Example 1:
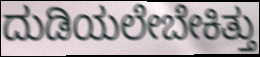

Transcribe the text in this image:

ದುಡಿಯಲೇಬೇಕಿತ್ತು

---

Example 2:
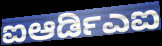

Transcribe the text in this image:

ಐಆರ್ಡಿಎಐ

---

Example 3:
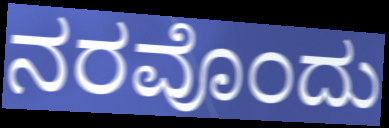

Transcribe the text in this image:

ನರವೊಂದು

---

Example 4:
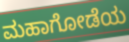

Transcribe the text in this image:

ಮಹಾಗೋಡೆಯ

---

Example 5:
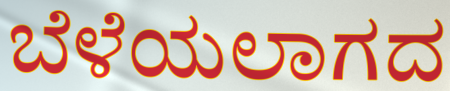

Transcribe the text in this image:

ಬೆಳೆಯಲಾಗದ